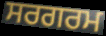
ਸਰਗਰਮ